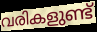
വരികളുണ്ട്